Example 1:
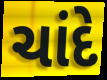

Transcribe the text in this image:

ચાંદે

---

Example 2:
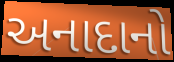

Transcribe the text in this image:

અનાદાનો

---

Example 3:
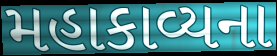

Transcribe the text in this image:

મહાકાવ્યના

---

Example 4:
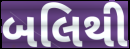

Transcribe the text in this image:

બલિથી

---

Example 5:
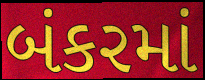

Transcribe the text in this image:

બંકરમાં